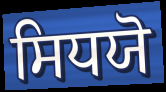
ਸਿਧਯੋ